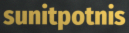
sunitpotnis